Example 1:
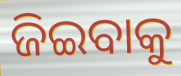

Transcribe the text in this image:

ଜିଇବାକୁ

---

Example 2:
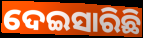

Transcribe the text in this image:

ଦେଇସାରିଛି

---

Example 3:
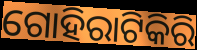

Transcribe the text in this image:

ଗୋହିରାଟିକିରି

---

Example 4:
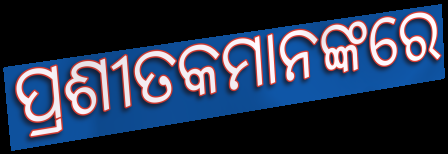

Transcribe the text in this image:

ପ୍ରଶୀତକମାନଙ୍କରେ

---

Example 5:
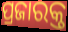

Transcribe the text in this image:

ପ୍ରଜାରକ୍ତ